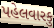
પહેલવારકુ